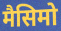
मैसिमो